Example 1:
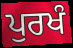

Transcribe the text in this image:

ਪੁਰਖੰ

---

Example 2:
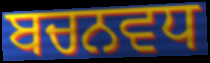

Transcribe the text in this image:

ਬਚਨਵਧ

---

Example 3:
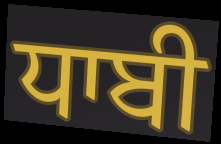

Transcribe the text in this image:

ਧਾਬੀ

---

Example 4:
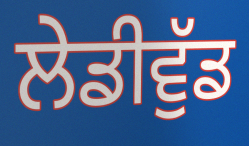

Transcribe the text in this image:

ਲੇਡੀਵੁੱਡ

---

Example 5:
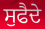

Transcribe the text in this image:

ਸੁਫੈਦੇ